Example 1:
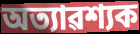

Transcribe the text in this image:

অত্যাৱশ্যক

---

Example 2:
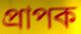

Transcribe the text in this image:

প্ৰাপক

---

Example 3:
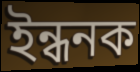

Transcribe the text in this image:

ইন্ধনক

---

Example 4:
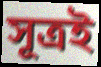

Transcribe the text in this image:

সূত্ৰই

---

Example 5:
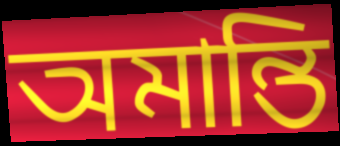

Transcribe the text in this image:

অমান্তি